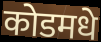
कोडमधे